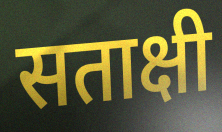
सताक्षी